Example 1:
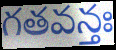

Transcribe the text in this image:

గతవన్తః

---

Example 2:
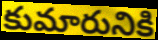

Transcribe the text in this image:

కుమారునికి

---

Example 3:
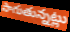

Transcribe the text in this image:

సాగుతున్నట్లు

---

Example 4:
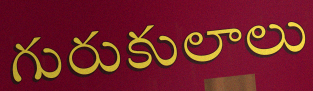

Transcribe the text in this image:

గురుకులాలు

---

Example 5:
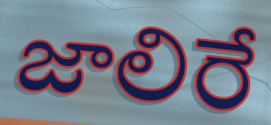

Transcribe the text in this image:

జాలిరే